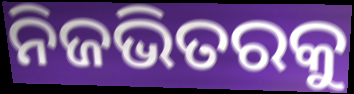
ନିଜଭିତରକୁ